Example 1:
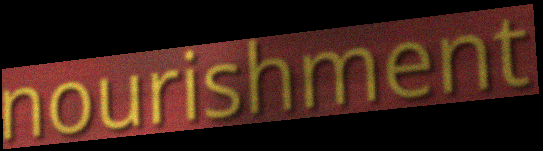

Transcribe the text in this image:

nourishment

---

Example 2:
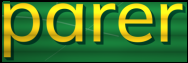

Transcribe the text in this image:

parer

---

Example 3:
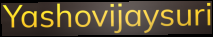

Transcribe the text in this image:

Yashovijaysuri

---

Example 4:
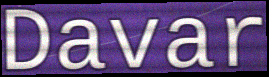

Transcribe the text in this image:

Davar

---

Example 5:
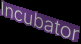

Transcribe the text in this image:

Incubator